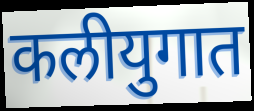
कलीयुगात